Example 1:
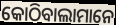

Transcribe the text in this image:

କୋଠିବାଲାମାନେ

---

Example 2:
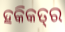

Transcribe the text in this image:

ହକିକତ୍‌ର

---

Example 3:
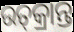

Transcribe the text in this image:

ଉତ୍‌କ୍ରାନ୍ତ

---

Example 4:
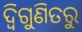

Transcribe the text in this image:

ଦ୍ୱିଗୁଣିତରୁ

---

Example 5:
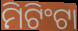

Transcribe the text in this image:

ମିଟିଂଟା